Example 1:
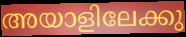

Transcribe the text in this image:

അയാളിലേക്കു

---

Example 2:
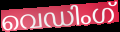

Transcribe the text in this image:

വെഡിംഗ്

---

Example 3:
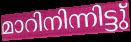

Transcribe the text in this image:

മാറിനിന്നിട്ടു്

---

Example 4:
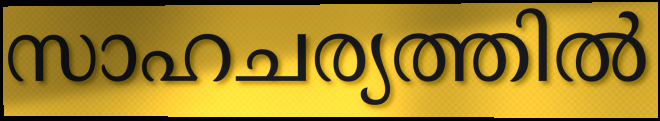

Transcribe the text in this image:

സാഹചര്യത്തിൽ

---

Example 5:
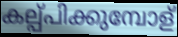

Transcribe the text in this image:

കല്പ്പിക്കുമ്പോള്